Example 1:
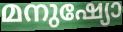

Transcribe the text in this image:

മനുഷ്യോ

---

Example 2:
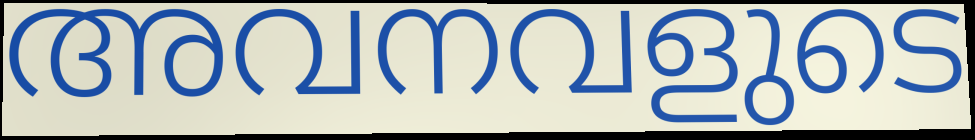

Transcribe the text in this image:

അവനവളുടെ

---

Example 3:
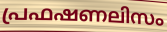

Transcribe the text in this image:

പ്രഫഷണലിസം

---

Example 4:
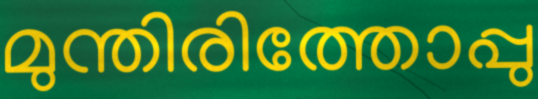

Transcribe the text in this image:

മുന്തിരിത്തോപ്പു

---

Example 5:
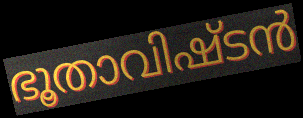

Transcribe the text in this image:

ഭൂതാവിഷ്ടൻ